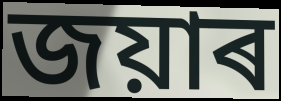
জয়াৰ